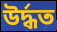
উৰ্দ্ধত